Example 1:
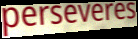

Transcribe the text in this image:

perseveres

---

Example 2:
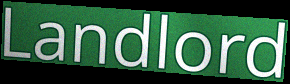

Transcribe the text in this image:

Landlord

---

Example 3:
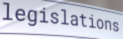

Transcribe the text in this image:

legislations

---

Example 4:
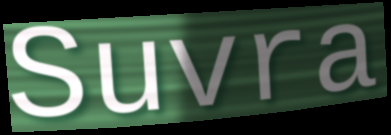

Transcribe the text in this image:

Suvra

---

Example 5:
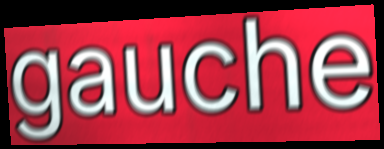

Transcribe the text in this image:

gauche